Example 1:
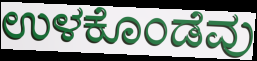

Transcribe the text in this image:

ಉಳಕೊಂಡೆವು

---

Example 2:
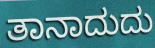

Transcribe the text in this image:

ತಾನಾದುದು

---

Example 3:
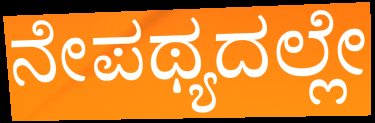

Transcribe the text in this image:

ನೇಪಥ್ಯದಲ್ಲೇ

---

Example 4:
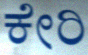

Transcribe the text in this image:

ಕೇರಿ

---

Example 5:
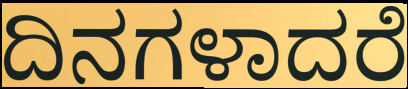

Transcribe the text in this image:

ದಿನಗಳಾದರೆ